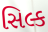
સિલ્ક